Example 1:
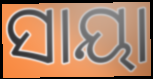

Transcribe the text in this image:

ସାୟା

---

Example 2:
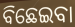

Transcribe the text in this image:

ବିଛେଇବା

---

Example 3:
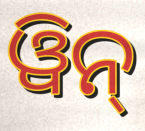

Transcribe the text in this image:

ୱିନ୍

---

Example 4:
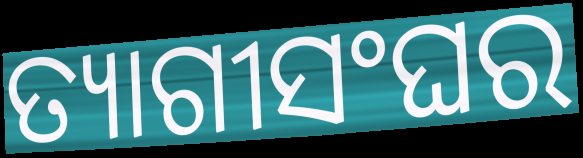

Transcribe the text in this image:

ତ୍ୟାଗୀସଂଘର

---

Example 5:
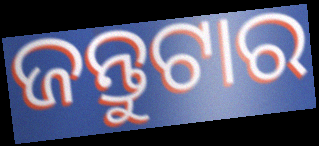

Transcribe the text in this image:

ଜନ୍ତୁଟାର